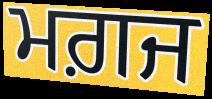
ਮਗ਼ਜ